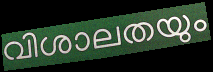
വിശാലതയും